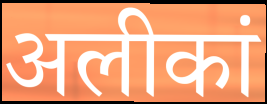
अलीकां